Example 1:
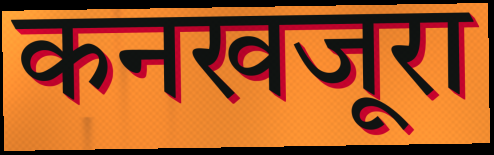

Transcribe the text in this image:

कनखजूरा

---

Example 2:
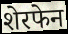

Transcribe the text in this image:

शेरफेन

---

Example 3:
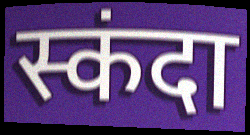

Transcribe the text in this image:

स्कंदा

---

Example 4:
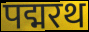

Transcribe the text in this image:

पद्मरथ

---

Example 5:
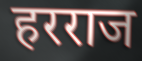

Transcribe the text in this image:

हरराज